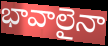
భావాలైనా